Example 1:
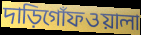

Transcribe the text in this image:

দাড়িগোঁফওয়ালা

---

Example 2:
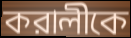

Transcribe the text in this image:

করালীকে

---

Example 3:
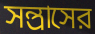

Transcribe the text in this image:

সন্ত্রাসের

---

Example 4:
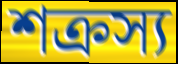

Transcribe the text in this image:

শক্রস্য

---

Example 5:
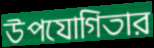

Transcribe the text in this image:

উপযোগিতার